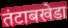
तंटाबखेडा